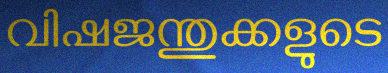
വിഷജന്തുക്കളുടെ